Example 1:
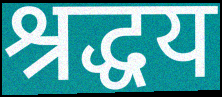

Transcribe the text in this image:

श्रद्धय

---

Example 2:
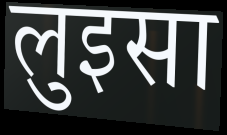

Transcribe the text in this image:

लुइसा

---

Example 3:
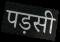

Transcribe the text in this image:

पड़सी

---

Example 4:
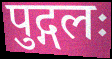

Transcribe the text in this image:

पुद्गलः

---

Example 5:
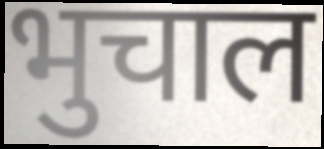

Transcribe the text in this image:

भुचाल